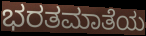
ಭರತಮಾತೆಯ